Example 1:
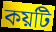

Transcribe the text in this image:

কয়টি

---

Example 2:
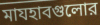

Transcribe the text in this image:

মাযহাবগুলোর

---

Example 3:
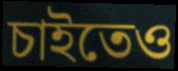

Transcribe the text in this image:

চাইতেও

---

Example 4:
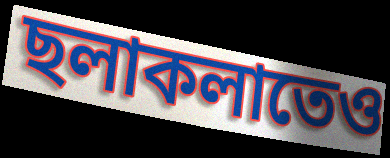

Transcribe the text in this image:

ছলাকলাতেও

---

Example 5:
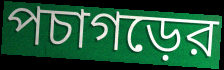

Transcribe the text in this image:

পচাগড়ের